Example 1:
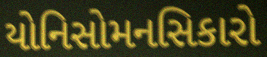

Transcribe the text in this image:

યોનિસોમનસિકારો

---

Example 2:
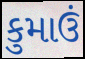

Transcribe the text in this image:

કુમાઉં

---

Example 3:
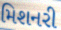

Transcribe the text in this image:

મિશનરી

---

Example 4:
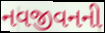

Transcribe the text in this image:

નવજીવનની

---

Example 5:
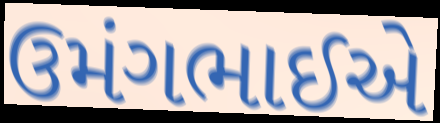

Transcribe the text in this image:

ઉમંગભાઈએ